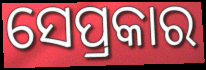
ସେପ୍ରକାର